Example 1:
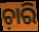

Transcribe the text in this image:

ଚ଼ାରି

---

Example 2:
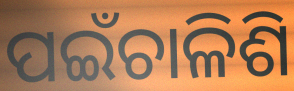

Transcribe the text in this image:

ପଇଁଚାଳିଶି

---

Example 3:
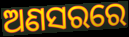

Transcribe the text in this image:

ଅଣସରରେ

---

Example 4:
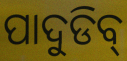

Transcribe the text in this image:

ପାଦୁଡିବ୍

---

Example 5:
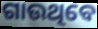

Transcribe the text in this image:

ଗାଉଥିବେ